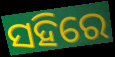
ସହିରେ